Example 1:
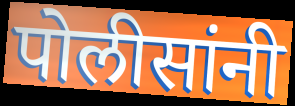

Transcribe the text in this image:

पोलीसांनी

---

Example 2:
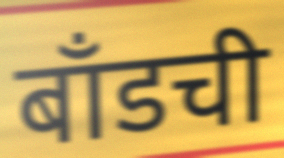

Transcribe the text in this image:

बाँडची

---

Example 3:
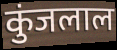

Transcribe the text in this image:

कुंजलाल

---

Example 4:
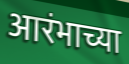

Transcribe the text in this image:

आरंभाच्या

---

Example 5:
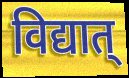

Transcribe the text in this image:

विद्यात्